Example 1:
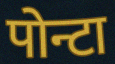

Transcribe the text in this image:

पोन्टा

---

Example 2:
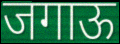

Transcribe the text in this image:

जगाऊ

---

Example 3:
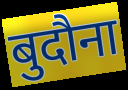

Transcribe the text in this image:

बुदौना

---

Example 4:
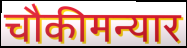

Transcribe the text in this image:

चौकीमन्यार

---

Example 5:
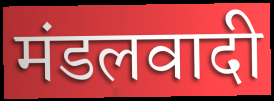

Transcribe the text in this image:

मंडलवादी